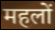
महलों